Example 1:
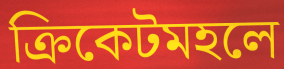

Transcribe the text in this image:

ক্রিকেটমহলে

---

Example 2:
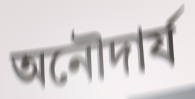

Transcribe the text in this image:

অনৌদার্য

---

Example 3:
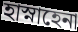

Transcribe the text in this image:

হাস্নাহেনা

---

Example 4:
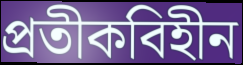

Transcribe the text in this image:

প্রতীকবিহীন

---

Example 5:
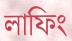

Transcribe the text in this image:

লাফিং